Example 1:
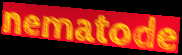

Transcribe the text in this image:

nematode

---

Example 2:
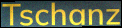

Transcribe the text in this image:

Tschanz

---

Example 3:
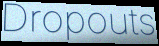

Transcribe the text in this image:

Dropouts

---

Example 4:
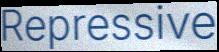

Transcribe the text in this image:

Repressive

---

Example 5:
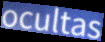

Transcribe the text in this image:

ocultas